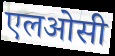
एलओसी